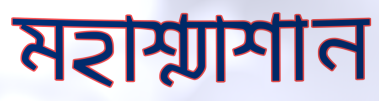
মহাশ্মাশান